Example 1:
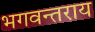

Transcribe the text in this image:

भगवन्तराय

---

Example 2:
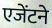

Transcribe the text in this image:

एजेंटने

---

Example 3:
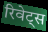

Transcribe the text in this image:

रिवेट्स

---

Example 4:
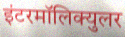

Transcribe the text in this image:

इंटरमॉलिक्युलर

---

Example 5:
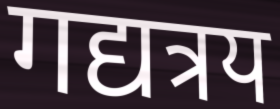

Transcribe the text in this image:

गद्यत्रय